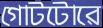
গোটটোৱে